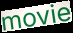
movie